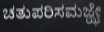
ಚತುಪರಿಸಮಜ್ಝೇ